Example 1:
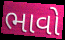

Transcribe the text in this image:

ભાવો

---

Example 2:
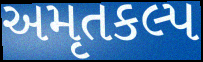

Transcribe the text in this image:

અમૃતકલ્પ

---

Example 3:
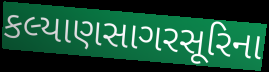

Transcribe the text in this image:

કલ્યાણસાગરસૂરિના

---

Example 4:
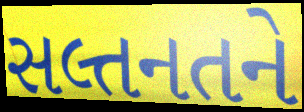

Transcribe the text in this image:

સલ્તનતને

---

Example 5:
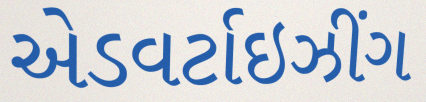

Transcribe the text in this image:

એડવર્ટાઇઝીંગ